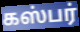
கஸ்பர்